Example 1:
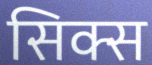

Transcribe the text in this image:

सिक्स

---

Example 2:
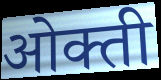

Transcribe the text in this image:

ओक्ती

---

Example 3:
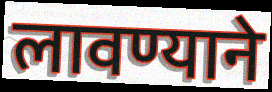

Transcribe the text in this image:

लावण्याने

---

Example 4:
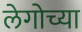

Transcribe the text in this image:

लेगोच्या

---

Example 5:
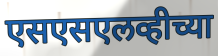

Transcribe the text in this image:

एसएसएलव्हीच्या